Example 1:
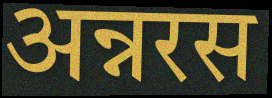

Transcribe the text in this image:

अन्नरस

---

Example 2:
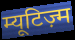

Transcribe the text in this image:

म्यूटिज़्म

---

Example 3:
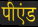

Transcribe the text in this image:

पीएंड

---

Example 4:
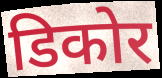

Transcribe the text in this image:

डिकोर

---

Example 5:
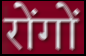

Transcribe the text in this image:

रोंगों